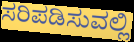
ಸರಿಪಡಿಸುವಲ್ಲಿ